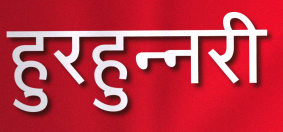
हुरहुन्नरी